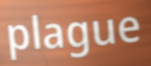
plague